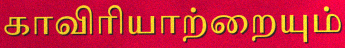
காவிரியாற்றையும்